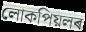
লোকপিয়লৰ